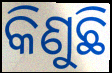
କିଣୁଛି